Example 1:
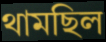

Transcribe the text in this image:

থামছিল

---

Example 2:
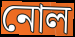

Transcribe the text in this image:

নোল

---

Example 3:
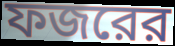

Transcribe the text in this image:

ফজরের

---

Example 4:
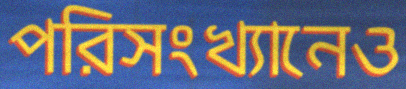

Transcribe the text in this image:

পরিসংখ্যানেও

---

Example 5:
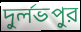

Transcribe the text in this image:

দুর্লভপুর